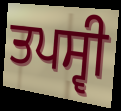
ਤਪਸ੍ਵੀ